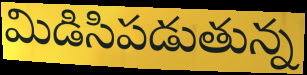
మిడిసిపడుతున్న